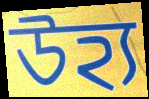
উহ্য